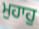
ਮੁਹਾਹੁ